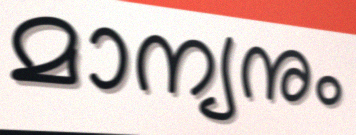
മാന്യനും